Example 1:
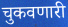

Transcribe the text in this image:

चुकवणारी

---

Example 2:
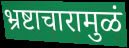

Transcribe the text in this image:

भ्रष्टाचारामुळं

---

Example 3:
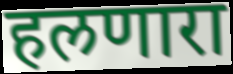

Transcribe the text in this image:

हलणारा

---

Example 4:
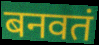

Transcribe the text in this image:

बनवतं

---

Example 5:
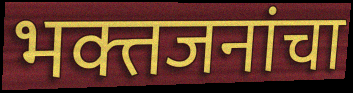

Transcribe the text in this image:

भक्तजनांचा